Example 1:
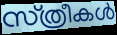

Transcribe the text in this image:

സ്‌ത്രീകൾ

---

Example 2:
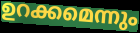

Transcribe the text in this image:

ഉറക്കമെന്നും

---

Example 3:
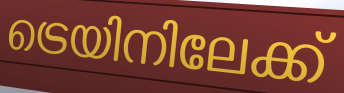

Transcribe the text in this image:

ട്രെയിനിലേക്ക്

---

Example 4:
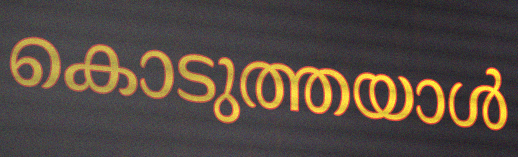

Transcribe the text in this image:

കൊടുത്തയാൾ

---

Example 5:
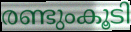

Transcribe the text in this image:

രണ്ടുംകൂടി